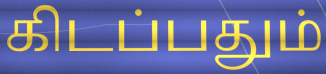
கிடப்பதும்